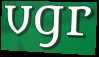
ugr